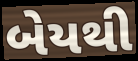
બેયથી